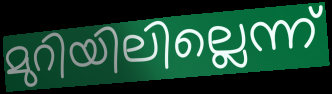
മുറിയിലില്ലെന്ന്